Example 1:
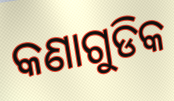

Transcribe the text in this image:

କଣାଗୁଡିକ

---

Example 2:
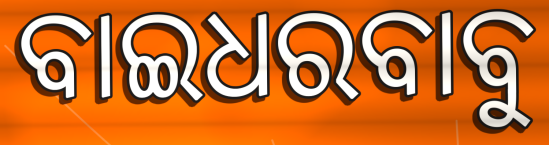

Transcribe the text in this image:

ବାଇଧରବାବୁ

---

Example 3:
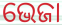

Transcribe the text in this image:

ଭେଜା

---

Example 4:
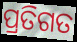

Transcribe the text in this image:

ପ୍ରତିଗତ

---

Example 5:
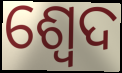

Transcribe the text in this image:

ଶ୍ଵେଦ